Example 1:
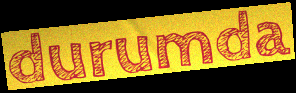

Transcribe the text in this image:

durumda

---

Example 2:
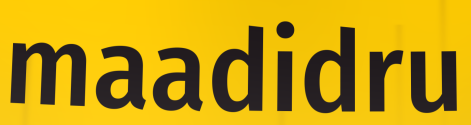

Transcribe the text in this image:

maadidru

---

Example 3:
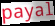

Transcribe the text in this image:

payal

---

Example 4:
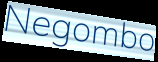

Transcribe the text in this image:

Negombo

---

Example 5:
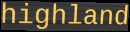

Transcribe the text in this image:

highland